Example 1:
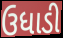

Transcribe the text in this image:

ઉધાડી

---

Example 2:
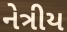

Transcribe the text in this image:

નેત્રીય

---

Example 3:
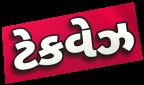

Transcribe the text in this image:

ટેકવેઝ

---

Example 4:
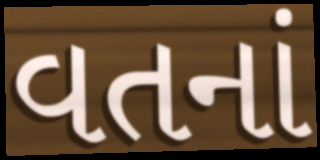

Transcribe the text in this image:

વતનાં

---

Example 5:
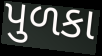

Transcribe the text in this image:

પુળકા